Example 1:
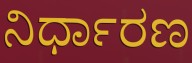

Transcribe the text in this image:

ನಿರ್ಧಾರಣ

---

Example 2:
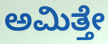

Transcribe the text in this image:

ಅಮಿತ್ತೇ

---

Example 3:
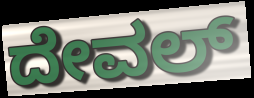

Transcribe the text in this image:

ದೇವಲ್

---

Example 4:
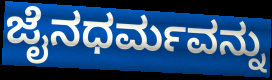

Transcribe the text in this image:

ಜೈನಧರ್ಮವನ್ನು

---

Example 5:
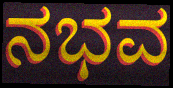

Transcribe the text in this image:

ನಭವ